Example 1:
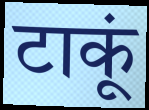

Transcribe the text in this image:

टाकूं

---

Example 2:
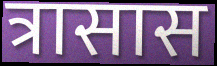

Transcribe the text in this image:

त्रासास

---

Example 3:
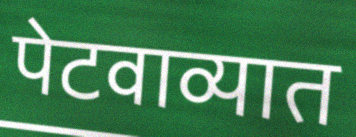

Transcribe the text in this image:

पेटवाव्यात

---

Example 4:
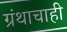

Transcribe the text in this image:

ग्रंथाचाही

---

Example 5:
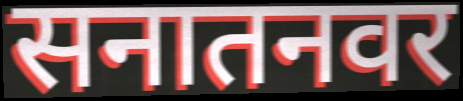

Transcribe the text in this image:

सनातनवर